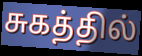
சுகத்தில்